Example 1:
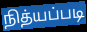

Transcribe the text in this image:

நித்யப்படி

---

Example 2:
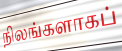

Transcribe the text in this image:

நிலங்களாகப்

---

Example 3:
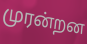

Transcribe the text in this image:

முரன்றன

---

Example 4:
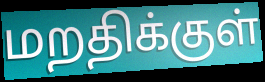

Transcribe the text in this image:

மறதிக்குள்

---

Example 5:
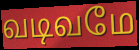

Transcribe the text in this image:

வடிவமே